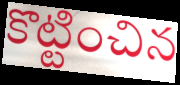
కొట్టించిన